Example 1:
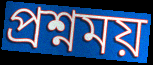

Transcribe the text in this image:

প্রশ্নময়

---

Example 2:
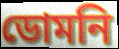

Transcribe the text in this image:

ডোমনি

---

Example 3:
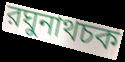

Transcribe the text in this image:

রঘুনাথচক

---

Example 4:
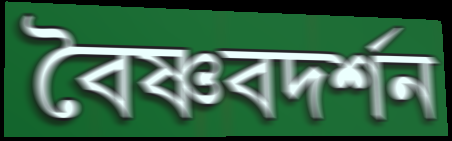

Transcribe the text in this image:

বৈষ্ণবদর্শন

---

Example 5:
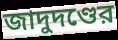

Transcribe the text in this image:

জাদুদণ্ডের